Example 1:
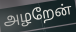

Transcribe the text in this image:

அழறேன்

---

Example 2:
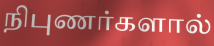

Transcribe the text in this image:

நிபுணர்களால்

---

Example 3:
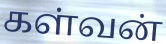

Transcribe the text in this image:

கள்வன்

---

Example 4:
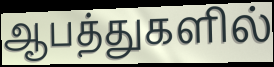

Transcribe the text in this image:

ஆபத்துகளில்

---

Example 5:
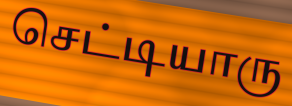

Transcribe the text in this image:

செட்டியாரு